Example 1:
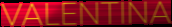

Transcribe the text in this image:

VALENTINA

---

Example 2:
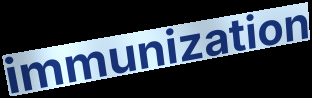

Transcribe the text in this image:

immunization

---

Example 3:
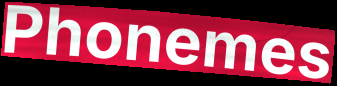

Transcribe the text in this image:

Phonemes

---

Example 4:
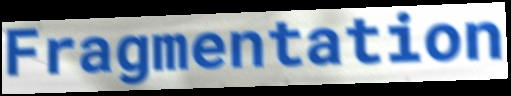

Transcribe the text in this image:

Fragmentation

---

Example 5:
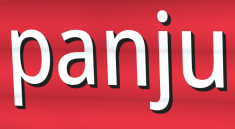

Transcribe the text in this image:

panju